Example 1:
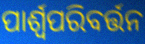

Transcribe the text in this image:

ପାର୍ଶ୍ଵପରିବର୍ତ୍ତନ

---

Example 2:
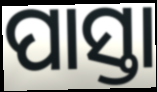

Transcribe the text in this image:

ପାସ୍ତା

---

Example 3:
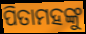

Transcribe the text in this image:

ପିତାମହଙ୍କୁ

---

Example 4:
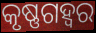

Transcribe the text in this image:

କୃଷ୍ଣଗହ୍ୱର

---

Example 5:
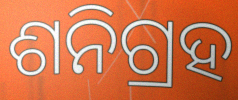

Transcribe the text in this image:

ଶନିଗ୍ରହ